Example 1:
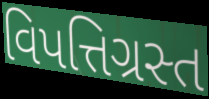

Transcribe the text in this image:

વિપત્તિગ્રસ્ત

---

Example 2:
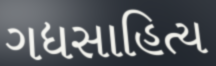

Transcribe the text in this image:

ગદ્યસાહિત્ય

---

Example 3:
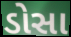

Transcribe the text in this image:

ડોસા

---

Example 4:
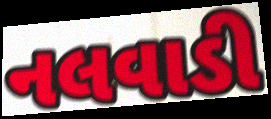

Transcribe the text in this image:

નલવાડી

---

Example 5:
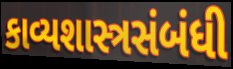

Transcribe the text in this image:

કાવ્યશાસ્ત્રસંબંધી